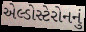
એલ્ડોસ્ટેરોનનું